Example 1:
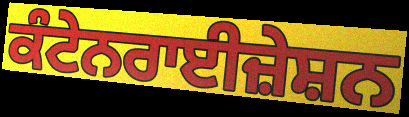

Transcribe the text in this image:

ਕੰਟੇਨਰਾਈਜ਼ੇਸ਼ਨ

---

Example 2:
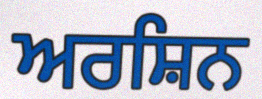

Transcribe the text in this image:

ਅਰਸ਼ਿਨ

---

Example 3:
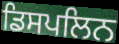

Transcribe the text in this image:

ਡਿਸਪਲਿਨ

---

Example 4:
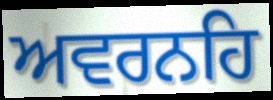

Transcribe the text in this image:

ਅਵਰਨਹਿ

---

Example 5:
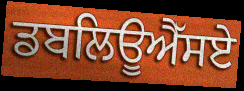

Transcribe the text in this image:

ਡਬਲਿਊਐੱਸਏ